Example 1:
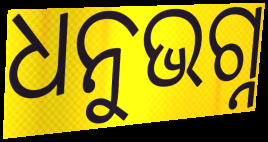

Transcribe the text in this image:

ଧନୁଭଗ୍ନ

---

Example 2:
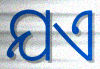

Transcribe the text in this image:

ଯଏ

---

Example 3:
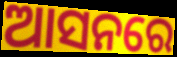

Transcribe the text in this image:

ଆସନରେ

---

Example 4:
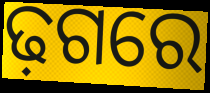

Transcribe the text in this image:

ଢ଼ଗରେ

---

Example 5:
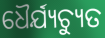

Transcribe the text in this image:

ଧୈର୍ଯ୍ୟଚ୍ୟୁତ